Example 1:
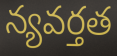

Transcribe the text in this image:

న్యవర్తత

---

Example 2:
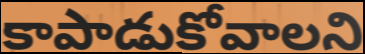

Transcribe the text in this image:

కాపాడుకోవాలని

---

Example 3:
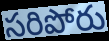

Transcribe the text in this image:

సరిపోరు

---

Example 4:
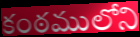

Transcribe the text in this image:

కంఠములోని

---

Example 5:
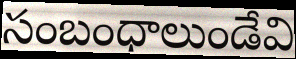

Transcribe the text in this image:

సంబంధాలుండేవి